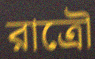
রাত্রৌ